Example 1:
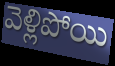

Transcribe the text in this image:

వెళ్లిపోయి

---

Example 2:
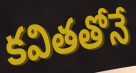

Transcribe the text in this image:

కవితతోనే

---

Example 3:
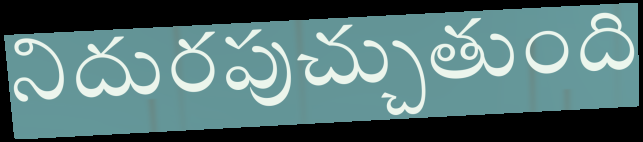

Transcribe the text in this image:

నిదురపుచ్చుతుంది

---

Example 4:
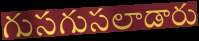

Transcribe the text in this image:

గుసగుసలాడారు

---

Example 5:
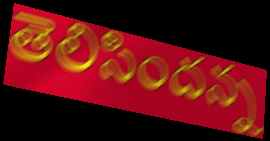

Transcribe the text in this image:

తెలిసిందన్న